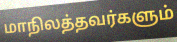
மாநிலத்தவர்களும்